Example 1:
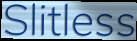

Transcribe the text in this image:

Slitless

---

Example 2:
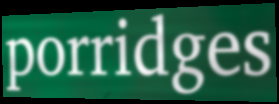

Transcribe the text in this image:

porridges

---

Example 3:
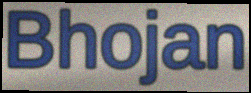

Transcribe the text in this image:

Bhojan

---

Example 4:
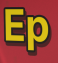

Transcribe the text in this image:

Ep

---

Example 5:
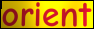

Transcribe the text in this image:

orient